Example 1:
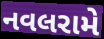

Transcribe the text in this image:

નવલરામે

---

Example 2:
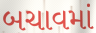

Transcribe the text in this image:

બચાવમાં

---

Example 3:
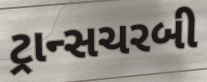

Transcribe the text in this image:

ટ્રાન્સચરબી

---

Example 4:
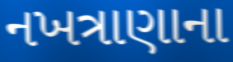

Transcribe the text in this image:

નખત્રાણાના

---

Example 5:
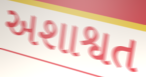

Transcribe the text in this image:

અશાશ્વત